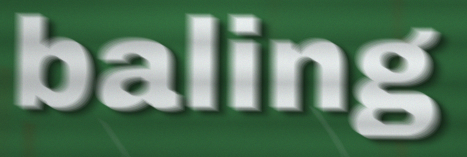
baling